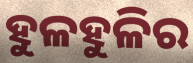
ହୁଳହୁଳିର